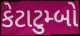
કેટાટુમ્બો